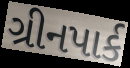
ગ્રીનપાર્ક